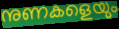
നുണകളെയും